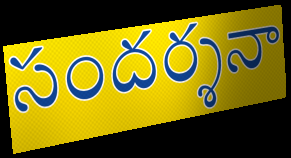
సందర్శనా